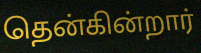
தென்கின்றார்